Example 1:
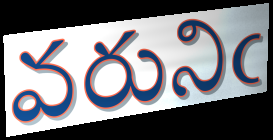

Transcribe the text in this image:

వరునిఁ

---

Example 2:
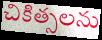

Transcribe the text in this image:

చికిత్సలను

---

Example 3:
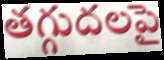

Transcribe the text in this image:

తగ్గుదలపై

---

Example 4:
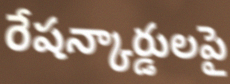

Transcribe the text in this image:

రేషన్కార్డులపై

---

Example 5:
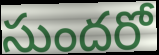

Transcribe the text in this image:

సుందరో